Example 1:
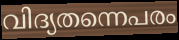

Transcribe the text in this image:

വിദ്യതന്നെപരം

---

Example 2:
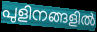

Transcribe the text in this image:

പുളിനങ്ങളിൽ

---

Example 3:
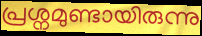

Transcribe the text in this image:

പ്രശ്നമുണ്ടായിരുന്നു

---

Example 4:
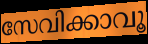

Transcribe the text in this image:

സേവിക്കാവൂ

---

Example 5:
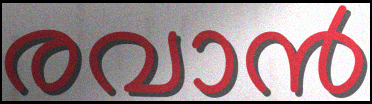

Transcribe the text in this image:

രവാൻ